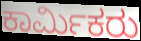
ಕಾರ್ಮಿಕರು